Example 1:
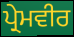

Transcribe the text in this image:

ਪ੍ਰੇਮਵੀਰ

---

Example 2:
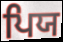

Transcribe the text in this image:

ਪਿਯ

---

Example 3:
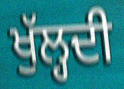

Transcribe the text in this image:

ਖੁੱਲ੍ਹਦੀ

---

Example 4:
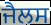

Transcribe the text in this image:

ਜੈਲਸ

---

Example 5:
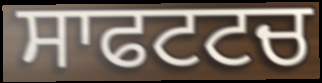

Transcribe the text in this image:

ਸਾਫਟਟਚ